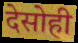
देसोही